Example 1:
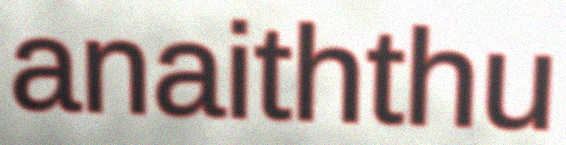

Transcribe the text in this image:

anaiththu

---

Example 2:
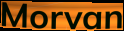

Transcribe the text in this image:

Morvan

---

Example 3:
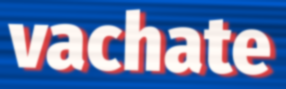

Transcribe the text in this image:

vachate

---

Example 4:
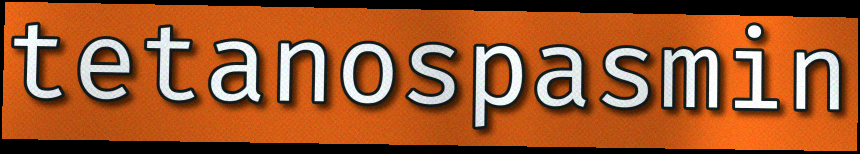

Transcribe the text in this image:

tetanospasmin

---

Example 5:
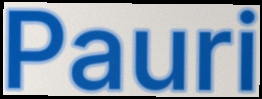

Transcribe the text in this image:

Pauri